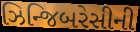
ઝિન્જિબરેસીની